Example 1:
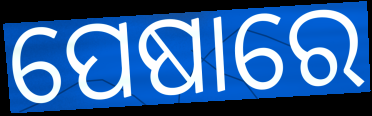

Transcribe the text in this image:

ପେଷାରେ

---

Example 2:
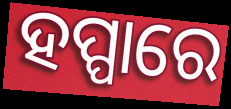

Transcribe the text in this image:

ହପ୍ପାରେ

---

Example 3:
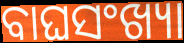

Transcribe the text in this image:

ବାଘସଂଖ୍ୟା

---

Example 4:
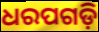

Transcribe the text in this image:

ଧରପଗଡ଼ି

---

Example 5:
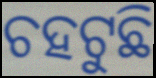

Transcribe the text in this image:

ଚହଟୁଛି